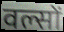
वल्सों